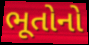
ભૂતોનો